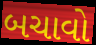
બચાવો